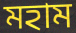
মহাম